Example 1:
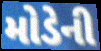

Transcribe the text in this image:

મોડેની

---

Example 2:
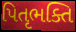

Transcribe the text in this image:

પિતૃભક્તિ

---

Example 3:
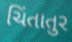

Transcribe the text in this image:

ચિંતાતુર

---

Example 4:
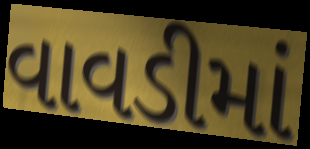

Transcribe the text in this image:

વાવડીમાં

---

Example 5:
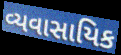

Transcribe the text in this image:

વ્યવાસાયિક